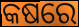
କଷରେ